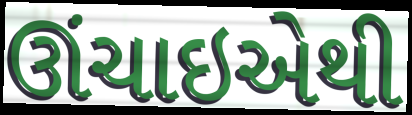
ઊંચાઇએથી